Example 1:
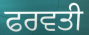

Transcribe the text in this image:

ਫਰਵਤੀ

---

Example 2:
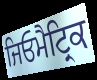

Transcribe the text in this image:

ਜਿਓਮੈਟ੍ਰਿਕ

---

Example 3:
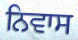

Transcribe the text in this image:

ਨਿਵਾਸ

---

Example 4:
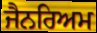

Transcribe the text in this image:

ਜੈਨਰਿਅਮ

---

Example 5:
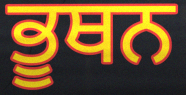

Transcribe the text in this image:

ਭੂਥਨ